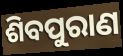
ଶିବପୁରାଣ